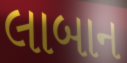
લાબાન